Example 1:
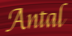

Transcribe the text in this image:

Antal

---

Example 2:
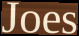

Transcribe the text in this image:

Joes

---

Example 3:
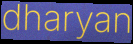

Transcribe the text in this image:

dharyan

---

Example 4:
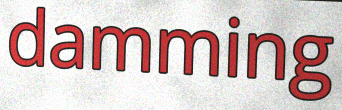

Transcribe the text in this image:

damming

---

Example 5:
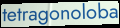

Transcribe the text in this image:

tetragonoloba